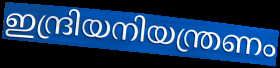
ഇന്ദ്രിയനിയന്ത്രണം